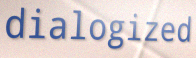
dialogized